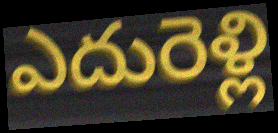
ఎదురెళ్లి